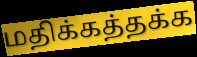
மதிக்கத்தக்க